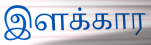
இளக்கார